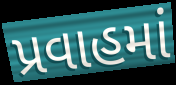
પ્રવાહમાં